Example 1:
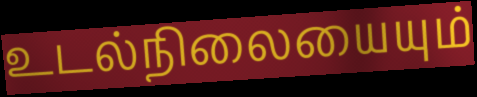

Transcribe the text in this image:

உடல்நிலையையும்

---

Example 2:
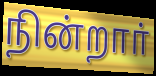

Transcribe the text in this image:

நின்றார்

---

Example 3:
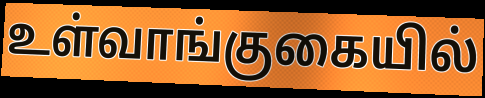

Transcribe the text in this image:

உள்வாங்குகையில்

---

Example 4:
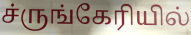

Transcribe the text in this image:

ச்ருங்கேரியில்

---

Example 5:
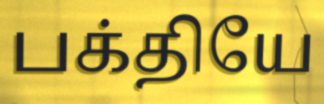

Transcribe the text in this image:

பக்தியே